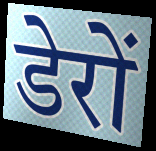
डेरों